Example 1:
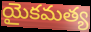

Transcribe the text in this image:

యైకమత్య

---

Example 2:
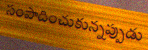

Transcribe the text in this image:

సంపాదించుకున్నప్పుడు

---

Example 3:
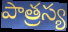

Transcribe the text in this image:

పాత్రస్య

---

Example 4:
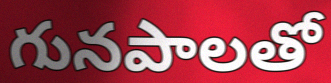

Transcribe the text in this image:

గునపాలతో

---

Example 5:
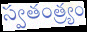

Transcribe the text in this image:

స్వతంత్ర్యం